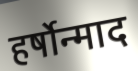
हर्षोन्माद